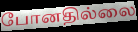
போனதில்லை